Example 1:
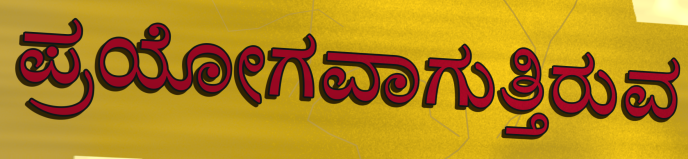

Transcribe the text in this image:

ಪ್ರಯೋಗವಾಗುತ್ತಿರುವ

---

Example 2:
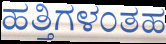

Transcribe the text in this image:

ಹತ್ತಿಗಳಂತಹ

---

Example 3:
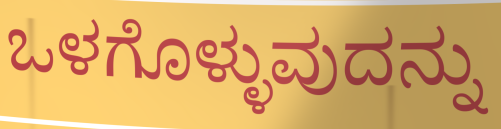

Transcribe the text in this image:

ಒಳಗೊಳ್ಳುವುದನ್ನು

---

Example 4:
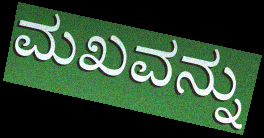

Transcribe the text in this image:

ಮಖವನ್ನು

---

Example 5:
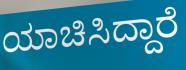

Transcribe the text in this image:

ಯಾಚಿಸಿದ್ದಾರೆ